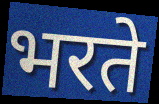
भरते